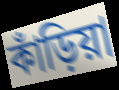
কাঁড়িয়া